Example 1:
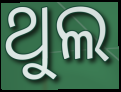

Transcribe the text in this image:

ଥୁଲ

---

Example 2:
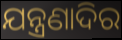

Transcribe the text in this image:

ଯନ୍ତ୍ରଣାଦିର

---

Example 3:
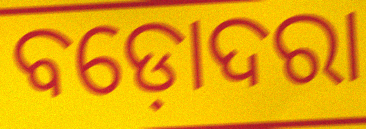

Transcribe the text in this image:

ବଡ଼ୋଦରା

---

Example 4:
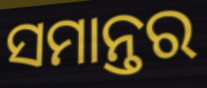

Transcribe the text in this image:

ସମାନ୍ତର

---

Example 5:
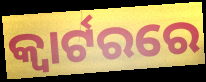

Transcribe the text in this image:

କ୍ଵାର୍ଟରରେ